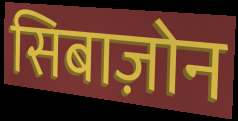
सिबाज़ोन